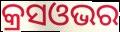
କ୍ରସଓଭର